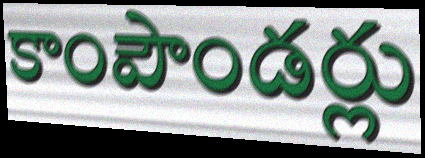
కాంపౌండర్లు